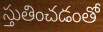
స్తుతించడంతో